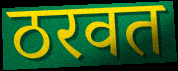
ठरवत